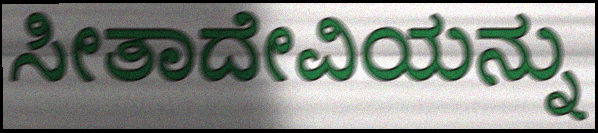
ಸೀತಾದೇವಿಯನ್ನು